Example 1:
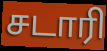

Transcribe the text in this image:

சடாரி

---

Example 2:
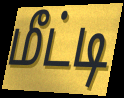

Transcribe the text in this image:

மீட்டி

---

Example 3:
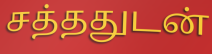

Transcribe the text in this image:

சத்ததுடன்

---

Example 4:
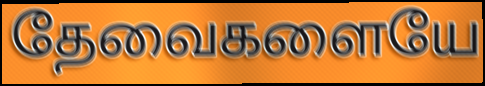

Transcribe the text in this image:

தேவைகளையே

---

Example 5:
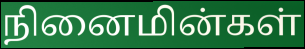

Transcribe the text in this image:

நினைமின்கள்